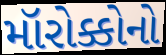
મૉરોક્કોનો